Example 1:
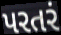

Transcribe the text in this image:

પરતરં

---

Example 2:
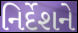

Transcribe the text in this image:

નિર્દેશને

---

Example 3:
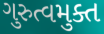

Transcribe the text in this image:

ગુરુત્વમુક્ત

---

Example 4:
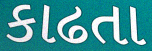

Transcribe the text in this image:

કાઢતા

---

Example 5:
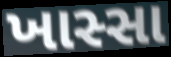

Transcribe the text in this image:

ખાસ્સા